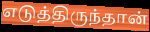
எடுத்திருந்தான்